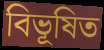
বিভূষিত